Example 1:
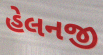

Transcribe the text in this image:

હેલનજી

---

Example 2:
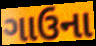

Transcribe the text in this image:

ગાઉના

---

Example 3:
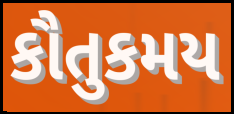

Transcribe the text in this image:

કૌતુકમય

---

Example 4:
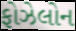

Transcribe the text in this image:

ફોઝેલોન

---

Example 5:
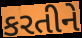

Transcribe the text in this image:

કરતીને